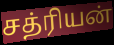
சத்ரியன்